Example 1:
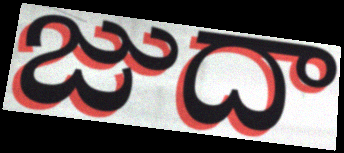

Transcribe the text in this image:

జుదా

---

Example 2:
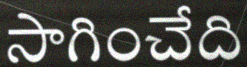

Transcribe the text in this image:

సాగించేది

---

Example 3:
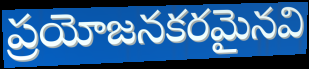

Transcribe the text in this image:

ప్రయోజనకరమైనవి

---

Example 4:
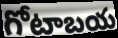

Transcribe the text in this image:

గోటాబయ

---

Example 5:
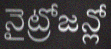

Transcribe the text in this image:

నైట్రోజన్లో